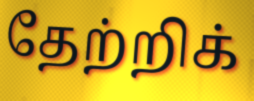
தேற்றிக்